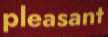
pleasant